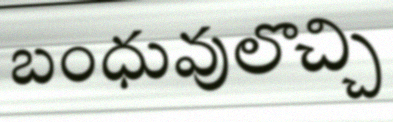
బంధువులొచ్చి